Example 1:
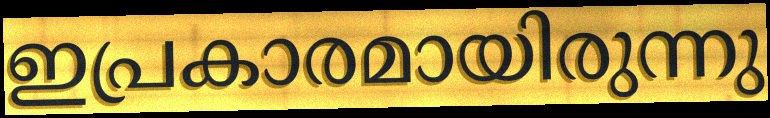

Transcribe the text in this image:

ഇപ്രകാരമായിരുന്നു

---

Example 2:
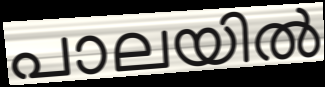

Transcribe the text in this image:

പാലയിൽ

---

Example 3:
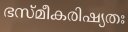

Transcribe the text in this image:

ഭസ്മീകരിഷ്യതഃ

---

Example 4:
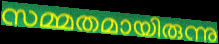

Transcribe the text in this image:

സമ്മതമായിരുന്നു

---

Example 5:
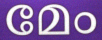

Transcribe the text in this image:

മേം